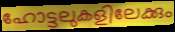
ഹോട്ടലുകളിലേക്കും